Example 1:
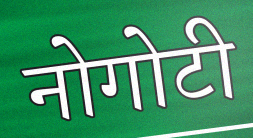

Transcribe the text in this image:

नोगोटी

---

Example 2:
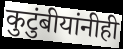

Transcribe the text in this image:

कुटुंबीयांनीही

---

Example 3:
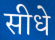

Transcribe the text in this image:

सीधे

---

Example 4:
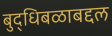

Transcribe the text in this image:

बुद्धिबळाबद्दल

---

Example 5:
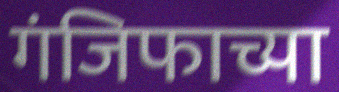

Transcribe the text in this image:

गंजिफाच्या